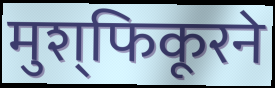
मुश्फिकूरने